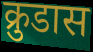
क्रुडास